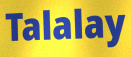
Talalay